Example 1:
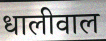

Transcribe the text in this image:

धालीवाल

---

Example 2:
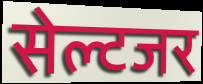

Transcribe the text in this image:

सेल्टजर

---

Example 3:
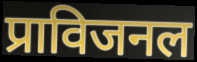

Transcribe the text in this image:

प्राविजनल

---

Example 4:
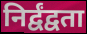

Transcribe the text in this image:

निर्द्वंद्वता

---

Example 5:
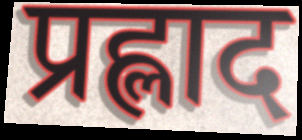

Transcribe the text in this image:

प्रह्लाद